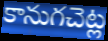
కానుగచెట్ల